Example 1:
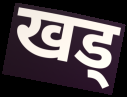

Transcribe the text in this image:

खड्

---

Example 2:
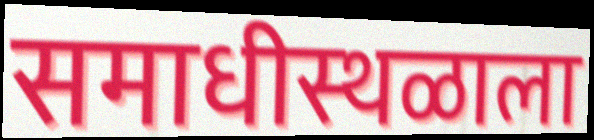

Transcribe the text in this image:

समाधीस्थळाला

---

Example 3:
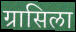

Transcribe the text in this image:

ग्रासिला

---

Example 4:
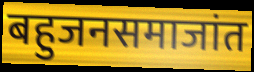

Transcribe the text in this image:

बहुजनसमाजांत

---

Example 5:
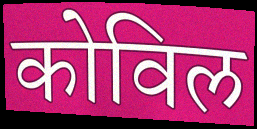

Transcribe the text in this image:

कोविल